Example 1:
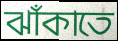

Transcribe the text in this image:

ঝাঁকাতে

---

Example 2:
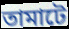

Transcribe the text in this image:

তামাটে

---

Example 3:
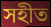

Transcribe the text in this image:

সহীত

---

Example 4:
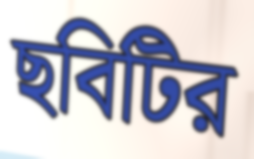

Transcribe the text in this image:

ছবিটির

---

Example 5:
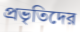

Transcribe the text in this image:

প্রভৃতিদের